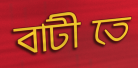
বাটীতে